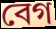
বেগ